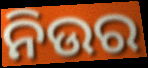
ନିଉର